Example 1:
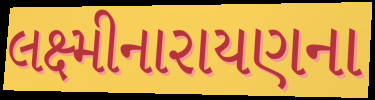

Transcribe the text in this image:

લક્ષ્મીનારાયણના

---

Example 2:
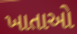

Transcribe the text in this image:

ખાતાઓ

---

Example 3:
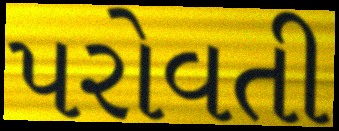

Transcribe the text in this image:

પરોવતી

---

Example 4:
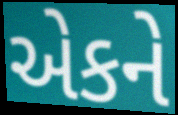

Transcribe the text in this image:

એકને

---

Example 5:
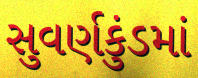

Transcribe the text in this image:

સુવર્ણકુંડમાં